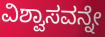
ವಿಶ್ವಾಸವನ್ನೇ